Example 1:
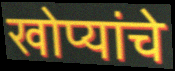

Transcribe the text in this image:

खोप्यांचे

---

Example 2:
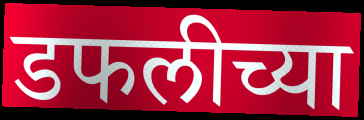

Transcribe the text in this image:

डफलीच्या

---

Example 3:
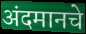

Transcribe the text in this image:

अंदमानचे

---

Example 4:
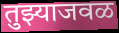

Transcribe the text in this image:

तुझ्याजवळ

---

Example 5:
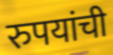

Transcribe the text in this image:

रुपयांची